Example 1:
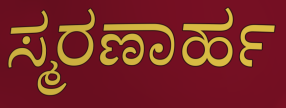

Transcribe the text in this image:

ಸ್ಮರಣಾರ್ಹ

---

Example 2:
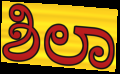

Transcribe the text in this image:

ಶಿಲಾ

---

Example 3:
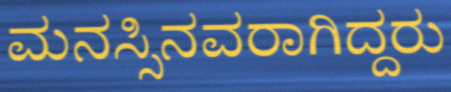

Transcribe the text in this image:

ಮನಸ್ಸಿನವರಾಗಿದ್ದರು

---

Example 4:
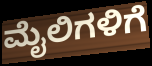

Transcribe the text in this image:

ಮೈಲಿಗಳಿಗೆ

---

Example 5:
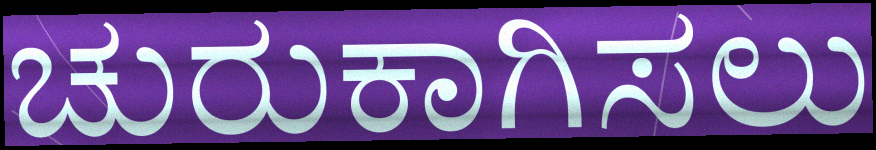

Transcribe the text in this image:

ಚುರುಕಾಗಿಸಲು